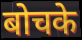
बोचके